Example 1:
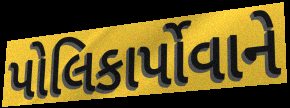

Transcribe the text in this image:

પોલિકાર્પોવાને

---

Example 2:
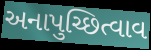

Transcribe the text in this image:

અનાપુચ્છિત્વાવ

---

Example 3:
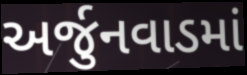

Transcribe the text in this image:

અર્જુનવાડમાં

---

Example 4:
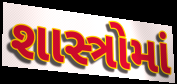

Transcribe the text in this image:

શાસ્ત્રોમાં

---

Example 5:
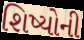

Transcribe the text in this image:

શિષ્યોની